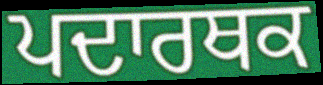
ਪਦਾਰਥਕ